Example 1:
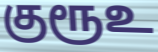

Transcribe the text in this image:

குரூஉ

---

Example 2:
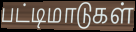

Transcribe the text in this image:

பட்டிமாடுகள்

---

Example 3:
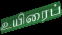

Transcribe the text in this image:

உயிரைப்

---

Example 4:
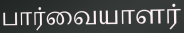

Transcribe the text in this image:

பார்வையாளர்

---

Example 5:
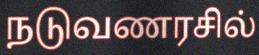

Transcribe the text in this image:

நடுவணரசில்